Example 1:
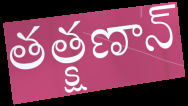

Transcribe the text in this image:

తత్క్షణాన్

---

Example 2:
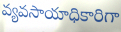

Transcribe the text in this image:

వ్యవసాయాధికారిగా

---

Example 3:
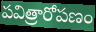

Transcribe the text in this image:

పవిత్రారోపణం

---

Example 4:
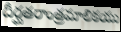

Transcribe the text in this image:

దీర్ఘతరాంత్రమాలికయు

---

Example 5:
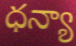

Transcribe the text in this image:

ధన్యా